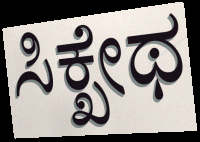
ಸಿಕ್ಖೇಥ